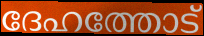
ദേഹത്തോട്